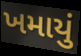
ખમાયું